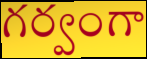
గర్వంగా